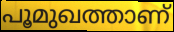
പൂമുഖത്താണ്